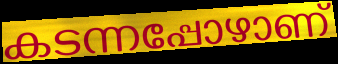
കടന്നപ്പോഴാണ്